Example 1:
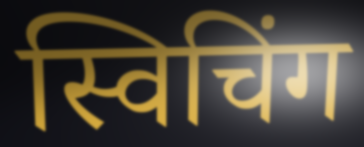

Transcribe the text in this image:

स्विचिंग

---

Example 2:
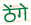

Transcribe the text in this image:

ठेंगे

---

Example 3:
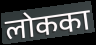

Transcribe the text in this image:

लोकका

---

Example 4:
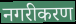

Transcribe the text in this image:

नगरीकरण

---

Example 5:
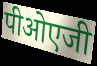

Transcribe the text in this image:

पीओएजी